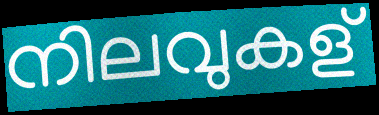
നിലവുകള്